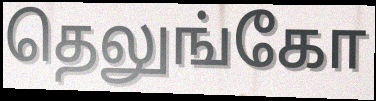
தெலுங்கோ